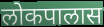
लोकपालास